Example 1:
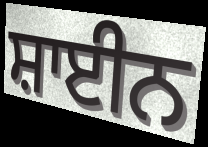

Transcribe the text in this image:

ਸ਼ਾਈਨ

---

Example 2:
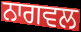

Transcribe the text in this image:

ਨਾਗਵਲ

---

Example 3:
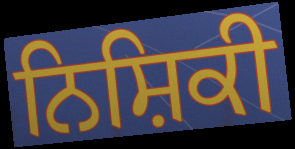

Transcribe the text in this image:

ਨਿਸ਼ਿਕੀ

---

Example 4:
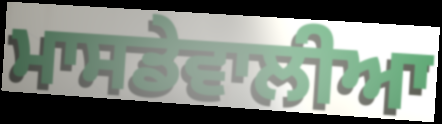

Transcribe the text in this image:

ਮਾਸਡੇਵਾਲੀਆ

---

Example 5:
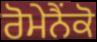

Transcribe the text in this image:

ਰੋਮੇਨੈਂਕੋ